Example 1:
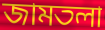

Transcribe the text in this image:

জামতলা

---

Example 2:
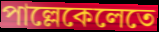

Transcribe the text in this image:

পাল্লেকেলেতে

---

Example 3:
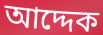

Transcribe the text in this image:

আদ্দেক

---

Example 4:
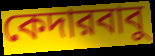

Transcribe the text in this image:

কেদারবাবু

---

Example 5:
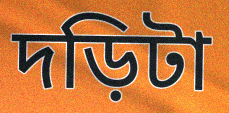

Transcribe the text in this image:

দড়িটা